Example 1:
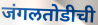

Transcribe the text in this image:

जंगलतोडीची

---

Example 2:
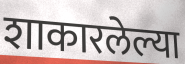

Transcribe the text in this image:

शाकारलेल्या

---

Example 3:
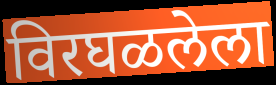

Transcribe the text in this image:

विरघळलेला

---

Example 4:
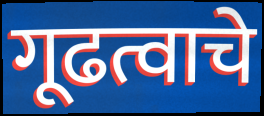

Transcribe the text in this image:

गूढत्वाचे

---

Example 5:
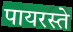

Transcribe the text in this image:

पायरस्ते